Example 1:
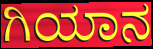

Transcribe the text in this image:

ಗಿಯಾನ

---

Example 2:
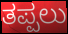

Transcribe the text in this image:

ತಪ್ಪಲು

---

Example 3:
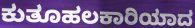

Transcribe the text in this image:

ಕುತೂಹಲಕಾರಿಯಾದ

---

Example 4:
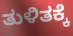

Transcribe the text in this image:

ತುಳಿತಕ್ಕೆ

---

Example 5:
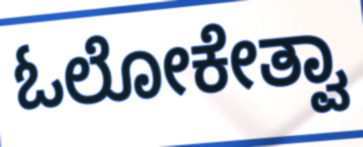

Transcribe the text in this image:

ಓಲೋಕೇತ್ವಾ